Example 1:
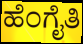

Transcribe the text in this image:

ಹೆಂಗೈತಿ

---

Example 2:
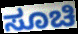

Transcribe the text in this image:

ಸೂಚಿ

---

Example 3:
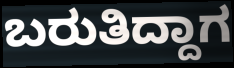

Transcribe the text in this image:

ಬರುತಿದ್ದಾಗ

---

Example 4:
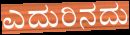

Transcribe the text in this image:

ಎದುರಿನದು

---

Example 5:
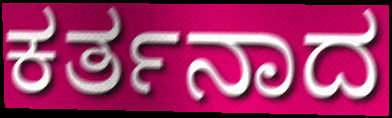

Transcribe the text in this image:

ಕರ್ತನಾದ